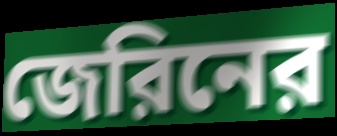
জেরিনের